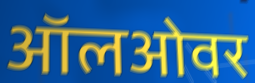
ऑलओवर